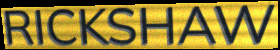
RICKSHAW